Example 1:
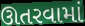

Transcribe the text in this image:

ઊતરવામાં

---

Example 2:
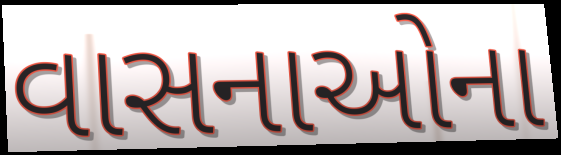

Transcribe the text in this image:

વાસનાઓના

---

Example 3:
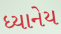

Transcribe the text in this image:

ધ્યાનેય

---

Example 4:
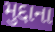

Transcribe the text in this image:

મુદ્દાના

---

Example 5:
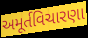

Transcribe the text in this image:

અમૂર્તવિચારણા